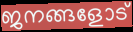
ജനങ്ങളോട്